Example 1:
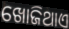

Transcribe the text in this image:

ଖୋଜିଥାଏ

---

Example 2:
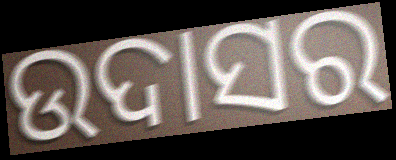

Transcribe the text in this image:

ଉଦାସର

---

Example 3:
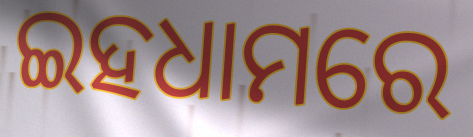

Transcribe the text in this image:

ଇହଧାମରେ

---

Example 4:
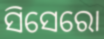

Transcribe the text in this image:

ସିସେରୋ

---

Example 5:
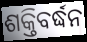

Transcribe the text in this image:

ଶକ୍ତିବର୍ଦ୍ଧନ